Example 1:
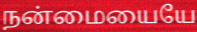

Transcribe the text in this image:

நன்மையையே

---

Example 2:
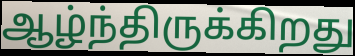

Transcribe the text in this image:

ஆழ்ந்திருக்கிறது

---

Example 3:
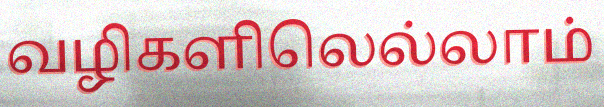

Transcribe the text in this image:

வழிகளிலெல்லாம்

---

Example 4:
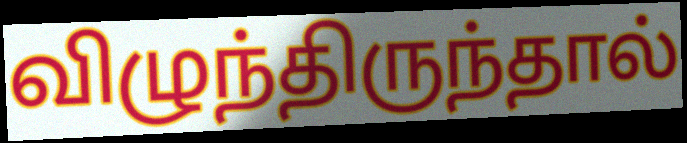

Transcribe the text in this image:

விழுந்திருந்தால்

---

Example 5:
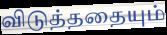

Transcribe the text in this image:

விடுத்ததையும்